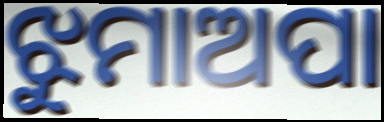
ଝୁମାଅପା